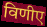
विणीए